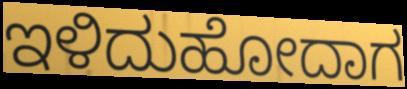
ಇಳಿದುಹೋದಾಗ